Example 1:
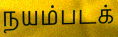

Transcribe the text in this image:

நயம்படக்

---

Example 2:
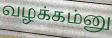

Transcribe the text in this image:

வழக்கம்னு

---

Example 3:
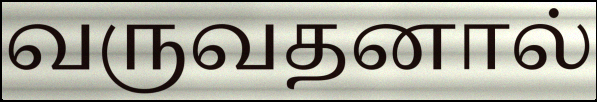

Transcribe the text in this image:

வருவதனால்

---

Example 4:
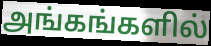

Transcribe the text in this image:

அங்கங்களில்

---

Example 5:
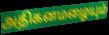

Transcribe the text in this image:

அதிகனமழையும்